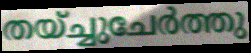
തയ്ച്ചുചേർത്തു